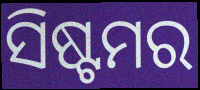
ସିଷ୍ଟମର